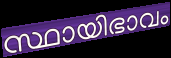
സ്ഥായിഭാവം